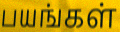
பயங்கள்